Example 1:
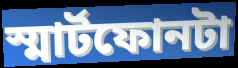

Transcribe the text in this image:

স্মার্টফোনটা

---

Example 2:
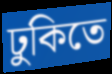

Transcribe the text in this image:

ঢুকিতে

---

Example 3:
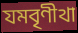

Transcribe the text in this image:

যমবৃণীথা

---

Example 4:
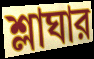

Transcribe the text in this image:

শ্লাঘার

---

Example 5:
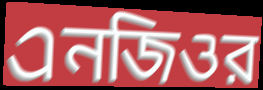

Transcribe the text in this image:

এনজিওর